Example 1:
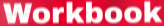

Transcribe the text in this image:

Workbook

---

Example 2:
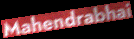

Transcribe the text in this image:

Mahendrabhai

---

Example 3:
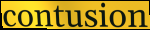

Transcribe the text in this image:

contusion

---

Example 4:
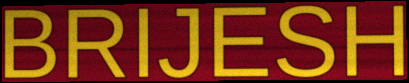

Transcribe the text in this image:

BRIJESH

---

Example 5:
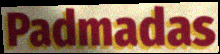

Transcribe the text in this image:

Padmadas